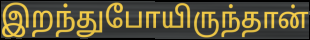
இறந்துபோயிருந்தான்